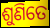
ଶୁଣିତେ